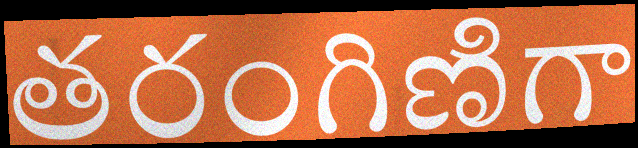
తరంగిణిగా